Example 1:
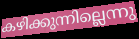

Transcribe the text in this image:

കഴിക്കുന്നില്ലെന്നു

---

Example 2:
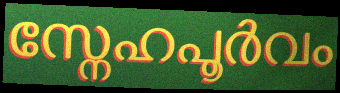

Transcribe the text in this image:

സ്നേഹപൂർവം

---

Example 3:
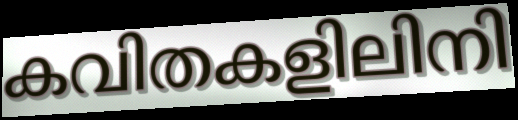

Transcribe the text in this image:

കവിതകളിലിനി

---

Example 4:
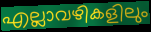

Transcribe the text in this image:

എല്ലാവഴികളിലും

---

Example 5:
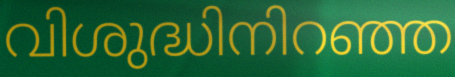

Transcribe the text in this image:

വിശുദ്ധിനിറഞ്ഞ